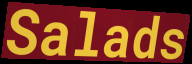
Salads